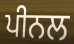
ਪੀਨਲ